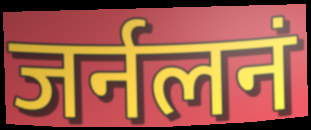
जर्नलनं